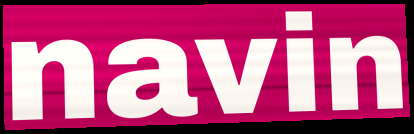
navin